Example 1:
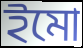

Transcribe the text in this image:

ইমো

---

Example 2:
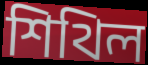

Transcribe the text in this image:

শিথিল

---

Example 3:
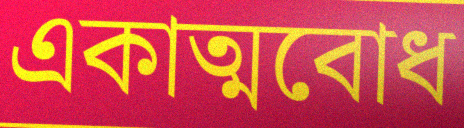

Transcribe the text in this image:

একাত্মবোধ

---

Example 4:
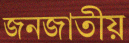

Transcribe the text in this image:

জনজাতীয়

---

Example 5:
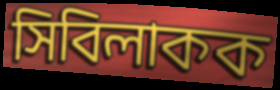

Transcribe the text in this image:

সিবিলাকক